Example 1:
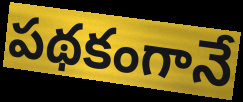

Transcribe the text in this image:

పథకంగానే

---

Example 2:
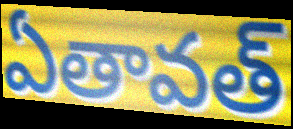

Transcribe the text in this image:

ఏతావత్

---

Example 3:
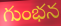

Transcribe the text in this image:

గుంభన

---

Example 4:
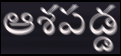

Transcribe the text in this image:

ఆశపడ్డ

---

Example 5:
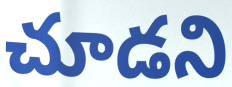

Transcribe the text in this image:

చూడని